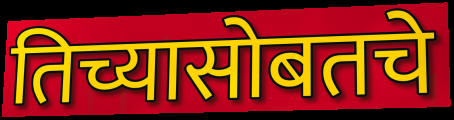
तिच्यासोबतचे